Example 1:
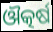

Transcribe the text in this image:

ଔତ୍କର୍ଷ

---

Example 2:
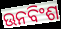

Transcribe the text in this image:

ଊନବିଂଶ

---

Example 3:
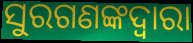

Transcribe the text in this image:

ସୁରଗଣଙ୍କଦ୍ୱାରା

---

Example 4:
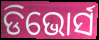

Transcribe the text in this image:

ଡିଭୋର୍ସ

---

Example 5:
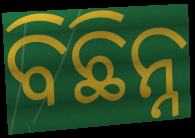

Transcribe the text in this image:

ବିଛିନ୍ନ